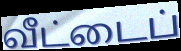
வீட்டைப்